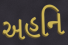
અહનિ